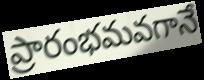
ప్రారంభమవగానే